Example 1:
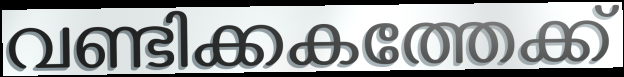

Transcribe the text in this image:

വണ്ടിക്കകത്തേക്ക്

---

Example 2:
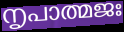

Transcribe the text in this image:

നൃപാത്മജഃ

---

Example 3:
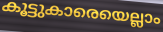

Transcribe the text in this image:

കൂട്ടുകാരെയെല്ലാം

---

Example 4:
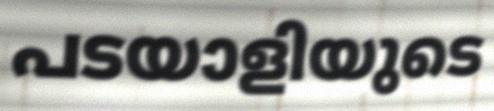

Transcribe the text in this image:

പടയാളിയുടെ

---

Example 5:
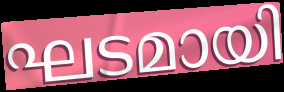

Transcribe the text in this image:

ഘടമായി